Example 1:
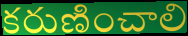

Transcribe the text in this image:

కరుణించాలి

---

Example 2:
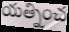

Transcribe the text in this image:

యత్నించ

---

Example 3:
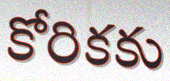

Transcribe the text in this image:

కోరికకు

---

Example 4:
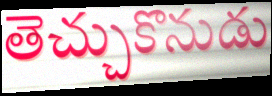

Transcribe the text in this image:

తెచ్చుకొనుడు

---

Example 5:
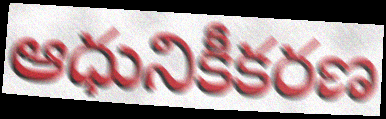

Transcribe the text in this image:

ఆధునికీకరణ